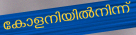
കോളനിയിൽനിന്ന്